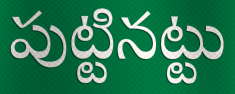
పుట్టినట్టు